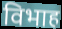
विभाह